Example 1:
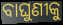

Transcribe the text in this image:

ବାଘୁଣୀକୁ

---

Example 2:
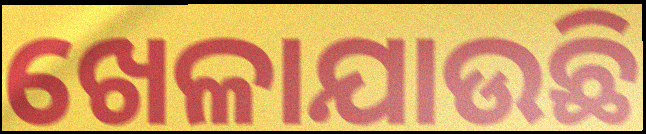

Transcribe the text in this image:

ଖେଳାଯାଉଛି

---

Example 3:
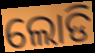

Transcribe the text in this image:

ଲୋଡି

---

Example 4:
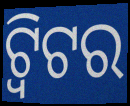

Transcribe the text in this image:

ଟ୍ୱିଟର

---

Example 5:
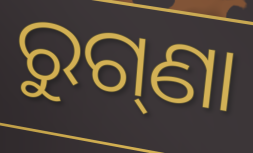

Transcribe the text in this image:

ରୁଗ୍‌ଣା